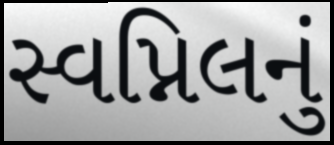
સ્વપ્નિલનું